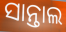
ସାନ୍ତାଲ